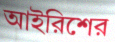
আইরিশের